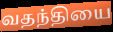
வதந்தியை